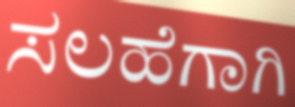
ಸಲಹೆಗಾಗಿ